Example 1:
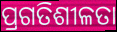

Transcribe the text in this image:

ପ୍ରଗତିଶୀଳତା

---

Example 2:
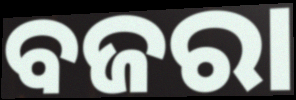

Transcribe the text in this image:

ବଜରା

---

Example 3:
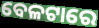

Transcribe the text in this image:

ବେଳଟାରେ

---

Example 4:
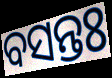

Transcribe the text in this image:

ବସନ୍ତଃ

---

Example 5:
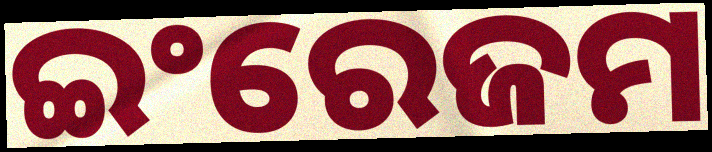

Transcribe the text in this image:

ଇଂରେଜମ